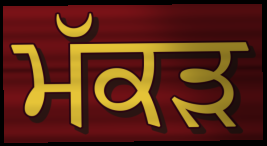
ਮੱਕੜ